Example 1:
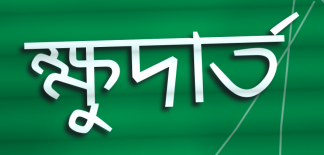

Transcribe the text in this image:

ক্ষুদার্ত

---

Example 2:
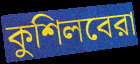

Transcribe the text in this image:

কুশিলবেরা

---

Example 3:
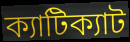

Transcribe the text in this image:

ক্যাটিক্যাট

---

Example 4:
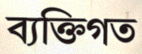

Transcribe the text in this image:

ব্যক্তিগত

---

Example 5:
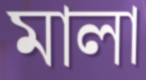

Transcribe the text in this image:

মালা